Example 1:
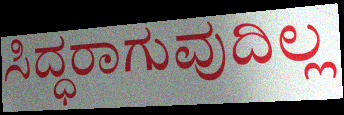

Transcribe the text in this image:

ಸಿದ್ಧರಾಗುವುದಿಲ್ಲ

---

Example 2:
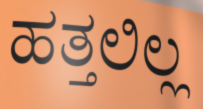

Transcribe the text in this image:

ಹತ್ತಲಿಲ್ಲ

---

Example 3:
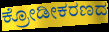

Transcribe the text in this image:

ಕ್ರೋಡೀಕರಣದ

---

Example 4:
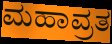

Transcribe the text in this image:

ಮಹಾವ್ರತ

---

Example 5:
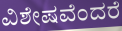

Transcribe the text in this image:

ವಿಶೇಷವೆಂದರೆ